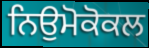
ਨਿਉਮੋਕੋਕਲ